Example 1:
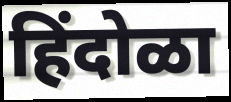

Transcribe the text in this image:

हिंदोळा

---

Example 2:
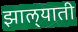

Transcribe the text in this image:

झाल्याती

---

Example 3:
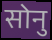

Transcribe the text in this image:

सोनु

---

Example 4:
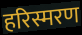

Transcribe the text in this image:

हरिस्मरण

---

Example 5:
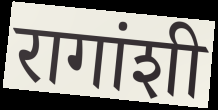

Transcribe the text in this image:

रागांशी